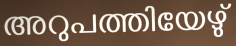
അറുപത്തിയേഴു്